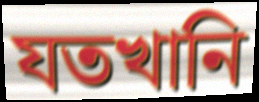
যতখানি